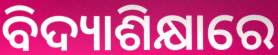
ବିଦ୍ୟାଶିକ୍ଷାରେ